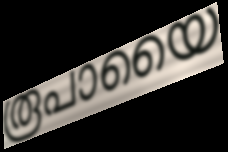
രൂപായൈ